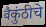
वैकुंठीचे